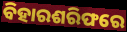
ବିହାରଶରିଫରେ